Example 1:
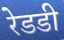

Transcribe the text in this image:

रेडडी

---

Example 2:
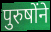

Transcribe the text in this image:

पुरुषोंने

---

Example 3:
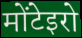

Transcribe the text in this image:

मोंटेइरो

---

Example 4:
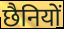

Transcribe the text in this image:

छैनियों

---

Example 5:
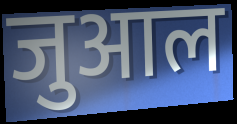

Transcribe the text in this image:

जुआल